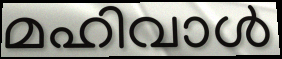
മഹിവാൾ